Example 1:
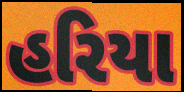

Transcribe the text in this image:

હરિયા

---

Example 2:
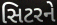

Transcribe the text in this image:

સિટરને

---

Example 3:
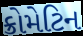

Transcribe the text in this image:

ક્રોમેટિન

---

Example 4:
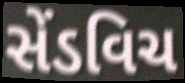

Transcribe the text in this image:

સેંડવિચ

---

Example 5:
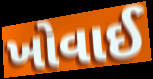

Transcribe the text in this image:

ખોવાઈ